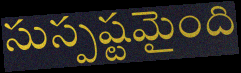
సుస్పష్టమైంది